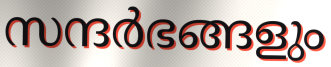
സന്ദർഭങ്ങളും